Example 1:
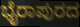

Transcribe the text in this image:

ಭೈರಾಪುರದ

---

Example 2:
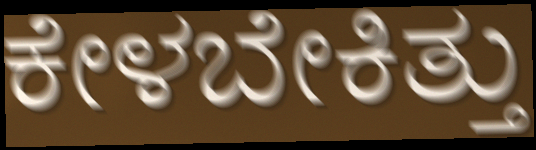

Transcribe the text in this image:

ಕೇಳಬೇಕಿತ್ತು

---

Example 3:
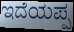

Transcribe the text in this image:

ಇದೆಯಪ್ಪ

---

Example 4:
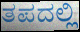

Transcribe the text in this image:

ತಪದಲ್ಲಿ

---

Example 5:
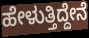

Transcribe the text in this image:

ಹೇಳುತ್ತಿದ್ದೇನೆ